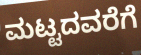
ಮಟ್ಟದವರೆಗೆ